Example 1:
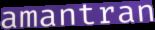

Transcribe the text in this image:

amantran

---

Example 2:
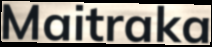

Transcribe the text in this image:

Maitraka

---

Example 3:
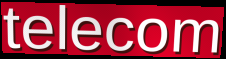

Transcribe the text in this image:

telecom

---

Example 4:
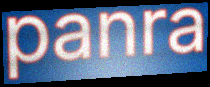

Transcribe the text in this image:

panra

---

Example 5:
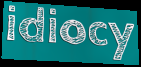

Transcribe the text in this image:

idiocy